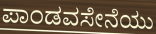
ಪಾಂಡವಸೇನೆಯು